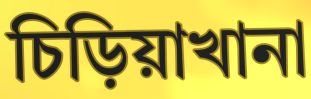
চিড়িয়াখানা